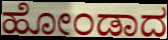
ಹೋಂಡಾದ